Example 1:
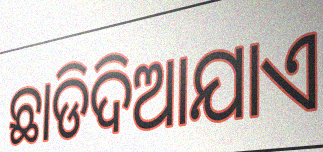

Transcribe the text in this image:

ଛାଡିଦିଆଯାଏ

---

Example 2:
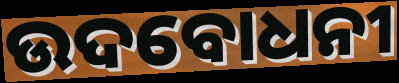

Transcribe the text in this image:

ଉଦବୋଧନୀ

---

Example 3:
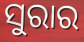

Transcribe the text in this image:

ସୁରାର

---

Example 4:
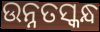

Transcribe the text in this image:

ଉନ୍ନତସ୍କନ୍ଧ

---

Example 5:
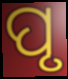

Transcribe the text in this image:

ପୃ